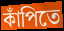
কাঁপিতে